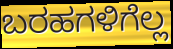
ಬರಹಗಳಿಗೆಲ್ಲ